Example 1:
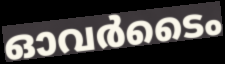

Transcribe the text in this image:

ഓവർടൈം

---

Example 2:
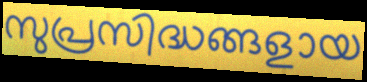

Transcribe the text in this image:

സുപ്രസിദ്ധങ്ങളായ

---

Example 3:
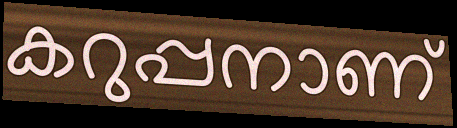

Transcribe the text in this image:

കറുപ്പനാണ്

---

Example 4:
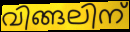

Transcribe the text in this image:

വിങ്ങലിന്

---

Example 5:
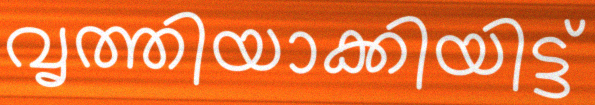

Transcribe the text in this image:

വൃത്തിയാക്കിയിട്ട്